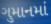
ગુમાનમાં